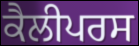
ਕੈਲੀਪਰਸ